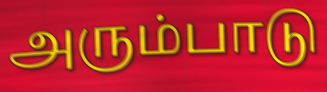
அரும்பாடு